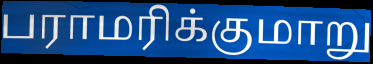
பராமரிக்குமாறு